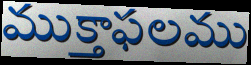
ముక్తాఫలము